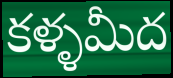
కళ్ళమీద